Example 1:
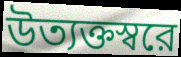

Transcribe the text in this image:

উত্যক্তস্বরে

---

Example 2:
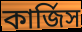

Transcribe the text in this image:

কার্জিস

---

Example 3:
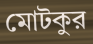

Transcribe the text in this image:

মোটকুর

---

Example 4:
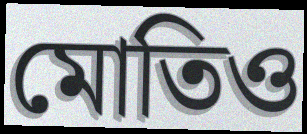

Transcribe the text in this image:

মোতিও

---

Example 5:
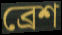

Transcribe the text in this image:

ব্রেশ